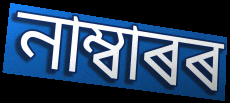
নাম্বাৰৰ